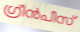
ഗ്രീൻപീസ്